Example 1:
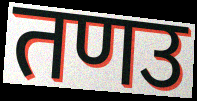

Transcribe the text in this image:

तणउ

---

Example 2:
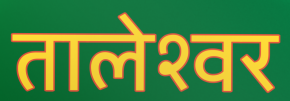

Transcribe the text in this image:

तालेश्वर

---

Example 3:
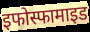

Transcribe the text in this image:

इफोस्फामाइड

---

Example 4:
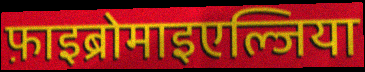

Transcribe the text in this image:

फ़ाइब्रोमाइएल्जिया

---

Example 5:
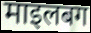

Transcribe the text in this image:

माइलबग